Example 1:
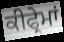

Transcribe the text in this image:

ਕੀਫ੍ਰੇਮਾਂ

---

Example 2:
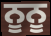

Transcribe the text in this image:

ਨੂਨੂ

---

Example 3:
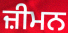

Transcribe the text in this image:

ਜ਼ੀਮਨ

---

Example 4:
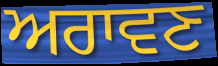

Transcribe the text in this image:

ਅਰਾਵਣ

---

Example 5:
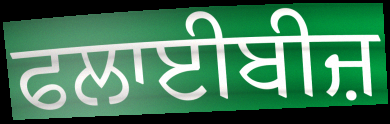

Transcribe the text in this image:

ਫਲਾਈਬੀਜ਼